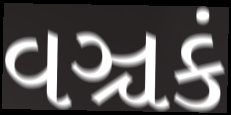
વઞ્ચકં